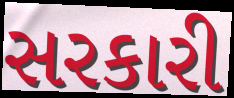
સરકારી